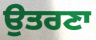
ਉਤਰਣਾ